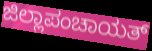
ಜಿಲ್ಲಾಪಂಚಾಯತ್